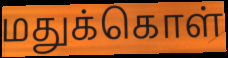
மதுக்கொள்